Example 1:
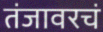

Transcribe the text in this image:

तंजावरचं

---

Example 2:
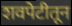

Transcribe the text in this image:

शवपेटीतून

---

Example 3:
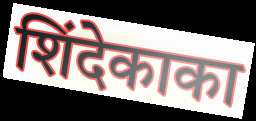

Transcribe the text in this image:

शिंदेकाका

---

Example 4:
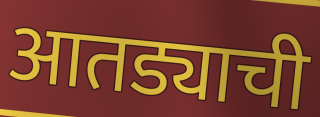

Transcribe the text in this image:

आतड्याची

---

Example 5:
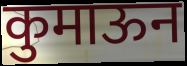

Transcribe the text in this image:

कुमाऊन